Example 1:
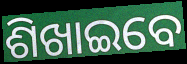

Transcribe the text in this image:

ଶିଖାଇବେ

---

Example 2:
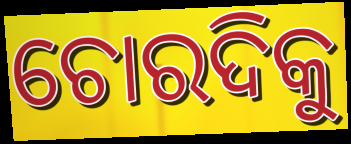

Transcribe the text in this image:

ଚୋରଦିକୁ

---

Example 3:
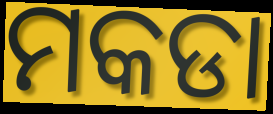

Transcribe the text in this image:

ମକଡା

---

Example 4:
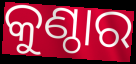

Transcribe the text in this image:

କୁଣ୍ଠାର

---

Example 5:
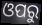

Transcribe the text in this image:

ଓପରୁ